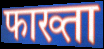
फाख्ता